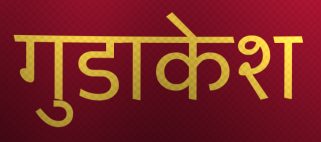
गुडाकेश